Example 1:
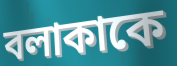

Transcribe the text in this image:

বলাকাকে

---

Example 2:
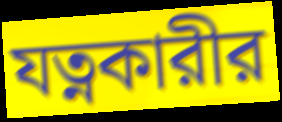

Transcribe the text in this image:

যত্নকারীর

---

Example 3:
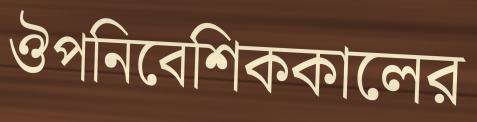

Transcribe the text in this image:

ঔপনিবেশিককালের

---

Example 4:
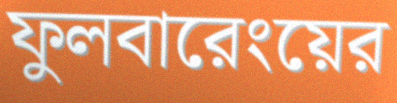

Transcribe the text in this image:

ফুলবারেংয়ের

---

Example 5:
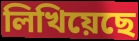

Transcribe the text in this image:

লিখিয়েছে